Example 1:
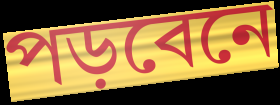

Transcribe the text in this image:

পড়বেনে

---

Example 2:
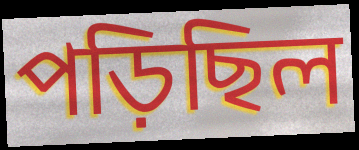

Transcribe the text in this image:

পড়িছিল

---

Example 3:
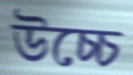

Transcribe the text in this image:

উচ্চে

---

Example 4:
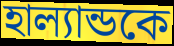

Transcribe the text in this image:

হাল্যান্ডকে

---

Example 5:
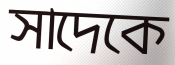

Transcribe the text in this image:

সাদেকে